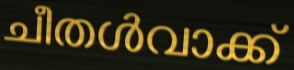
ചീതൾവാക്ക്